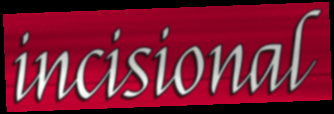
incisional